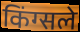
किंग्सले